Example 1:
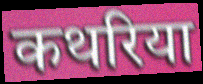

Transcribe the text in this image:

कथरिया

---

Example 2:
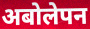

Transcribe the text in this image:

अबोलेपन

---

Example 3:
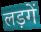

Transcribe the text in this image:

लड़गें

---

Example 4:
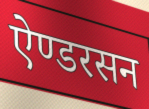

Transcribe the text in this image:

ऐण्डरसन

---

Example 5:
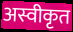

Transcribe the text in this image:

अस्वीकृत